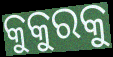
କୁକୁରକୁ